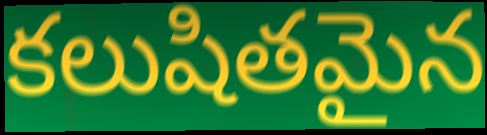
కలుషితమైన